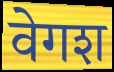
वेगश